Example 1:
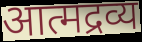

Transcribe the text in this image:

आत्मद्रव्य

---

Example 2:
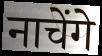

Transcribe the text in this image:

नाचेंगे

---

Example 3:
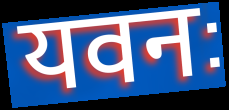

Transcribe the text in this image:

यवनः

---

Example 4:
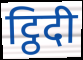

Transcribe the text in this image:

ट्ठिदी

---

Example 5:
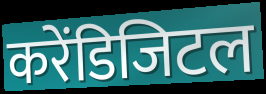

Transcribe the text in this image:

करेंडिजिटल